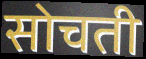
सोचती